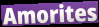
Amorites